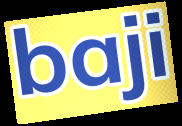
baji